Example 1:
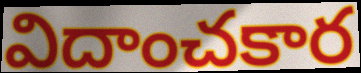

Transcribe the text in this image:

విదాంచకార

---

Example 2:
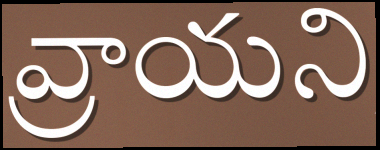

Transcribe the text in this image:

వ్రాయని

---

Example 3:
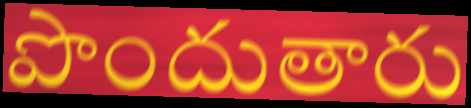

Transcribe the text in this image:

పొందుతారు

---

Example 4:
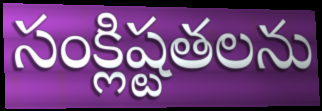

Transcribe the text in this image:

సంక్లిష్టతలను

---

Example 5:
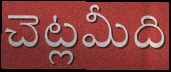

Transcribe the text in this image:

చెట్లమీది